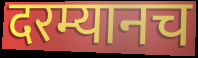
दरम्यानच